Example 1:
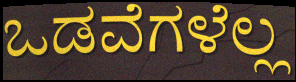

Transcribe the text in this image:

ಒಡವೆಗಳೆಲ್ಲ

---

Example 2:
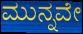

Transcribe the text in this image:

ಮುನ್ನವೇ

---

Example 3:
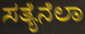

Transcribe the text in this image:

ಸತ್ಯೆನೆಲಾ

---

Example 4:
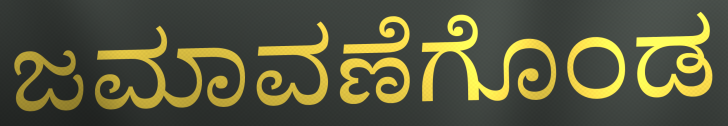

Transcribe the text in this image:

ಜಮಾವಣೆಗೊಂಡ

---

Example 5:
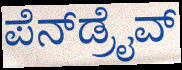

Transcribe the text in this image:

ಪೆನ್‌ಡ್ರೈವ್